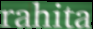
rahita